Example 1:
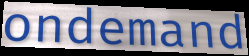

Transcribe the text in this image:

ondemand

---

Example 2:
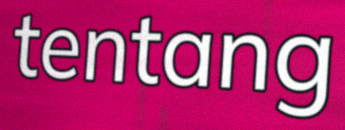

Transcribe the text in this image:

tentang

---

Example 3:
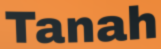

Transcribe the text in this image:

Tanah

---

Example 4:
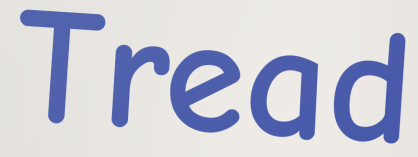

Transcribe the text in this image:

Tread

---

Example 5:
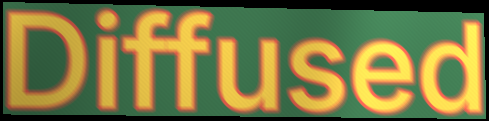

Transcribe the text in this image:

Diffused